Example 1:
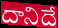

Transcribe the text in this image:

దానిదే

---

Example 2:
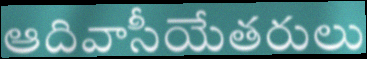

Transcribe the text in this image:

ఆదివాసీయేతరులు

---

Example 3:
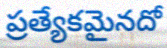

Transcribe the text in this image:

ప్రత్యేకమైనదో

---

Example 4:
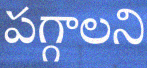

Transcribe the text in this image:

పగ్గాలని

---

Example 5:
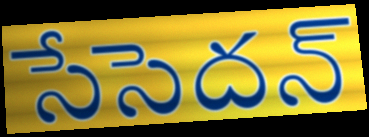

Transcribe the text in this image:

సేసెదన్